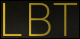
LBT